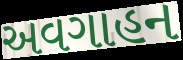
અવગાહન